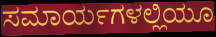
ಸಮಾರ್ಯಗಳಲ್ಲಿಯೂ